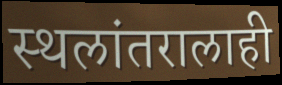
स्थलांतरालाही